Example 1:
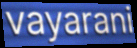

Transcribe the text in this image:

vayarani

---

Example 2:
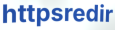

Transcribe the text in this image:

httpsredir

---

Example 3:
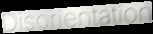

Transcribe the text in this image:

Disorientation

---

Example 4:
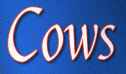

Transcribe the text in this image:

Cows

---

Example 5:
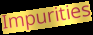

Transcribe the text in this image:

Impurities